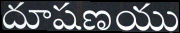
దూషణయు